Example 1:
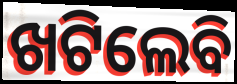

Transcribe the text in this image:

ଖଟିଲେବି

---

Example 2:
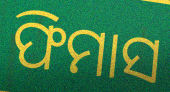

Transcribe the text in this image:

ଫିମାସ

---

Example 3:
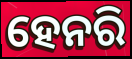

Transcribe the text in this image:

ହେନରି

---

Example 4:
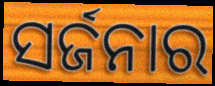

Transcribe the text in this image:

ସର୍ଜନାର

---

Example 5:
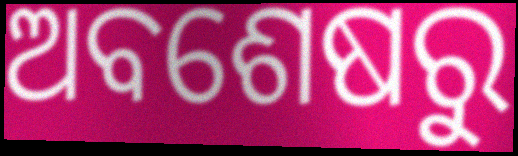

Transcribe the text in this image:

ଅବଶେଷରୁ